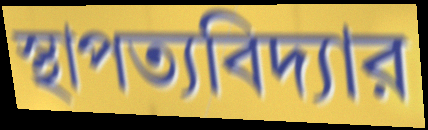
স্থাপত্যবিদ্যার